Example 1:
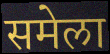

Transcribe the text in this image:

समेला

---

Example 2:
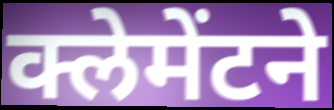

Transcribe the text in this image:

क्लेमेंटने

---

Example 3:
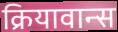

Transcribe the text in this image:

क्रियावान्स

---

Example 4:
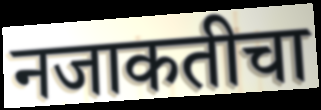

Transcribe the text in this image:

नजाकतीचा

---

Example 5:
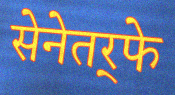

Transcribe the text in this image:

सेनेतर्फे